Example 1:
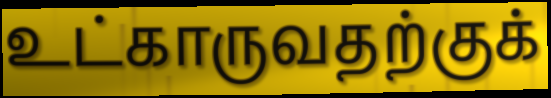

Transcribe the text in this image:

உட்காருவதற்குக்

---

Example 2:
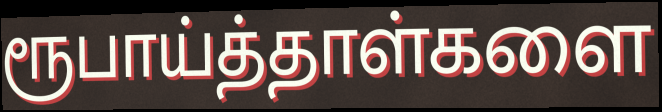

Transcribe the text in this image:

ரூபாய்த்தாள்களை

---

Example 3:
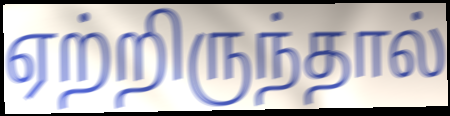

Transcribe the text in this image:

ஏற்றிருந்தால்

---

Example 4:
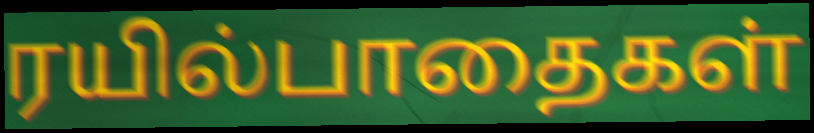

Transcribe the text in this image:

ரயில்பாதைகள்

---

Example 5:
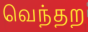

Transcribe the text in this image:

வெந்தற